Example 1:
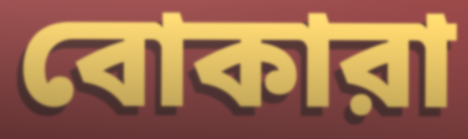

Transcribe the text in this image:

বোকারা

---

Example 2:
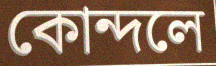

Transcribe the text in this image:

কোন্দলে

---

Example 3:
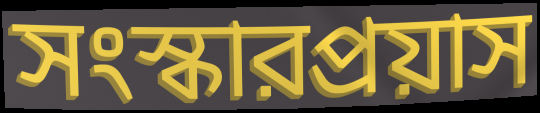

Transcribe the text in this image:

সংস্কারপ্রয়াস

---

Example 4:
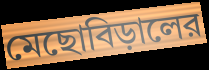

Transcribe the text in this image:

মেছোবিড়ালের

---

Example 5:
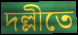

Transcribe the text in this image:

দল্লীতে